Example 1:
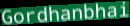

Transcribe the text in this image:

Gordhanbhai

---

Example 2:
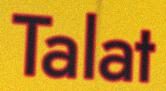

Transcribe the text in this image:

Talat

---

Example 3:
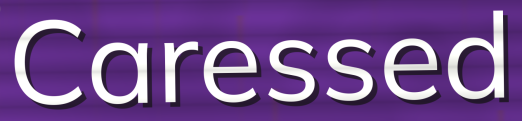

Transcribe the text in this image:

Caressed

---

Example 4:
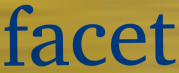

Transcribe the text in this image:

facet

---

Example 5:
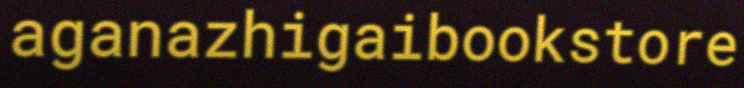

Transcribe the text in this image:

aganazhigaibookstore